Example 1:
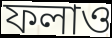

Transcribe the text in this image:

ফলাও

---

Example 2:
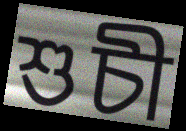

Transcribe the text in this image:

শুচী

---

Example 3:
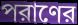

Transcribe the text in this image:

পরাণের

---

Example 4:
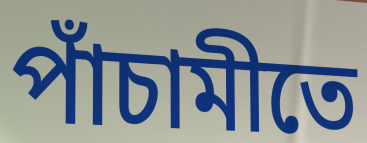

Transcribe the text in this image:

পাঁচামীতে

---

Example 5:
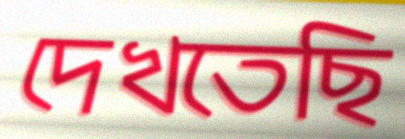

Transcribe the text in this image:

দেখতেছি